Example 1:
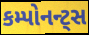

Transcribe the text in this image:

કમ્પોનન્ટ્સ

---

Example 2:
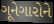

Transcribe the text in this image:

ગૂનેગારોને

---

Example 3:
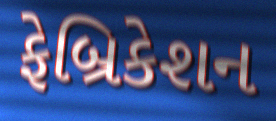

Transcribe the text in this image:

ફેબ્રિકેશન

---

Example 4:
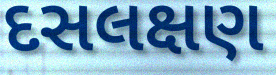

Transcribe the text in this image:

દસલક્ષણ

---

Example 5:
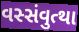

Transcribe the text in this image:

વસ્સંવુત્થા